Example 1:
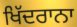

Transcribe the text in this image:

ਖਿੱਦਰਾਨਾ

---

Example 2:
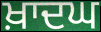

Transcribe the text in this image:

ਖ਼ਾਦਘ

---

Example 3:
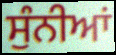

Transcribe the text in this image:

ਸੁੰਨੀਆਂ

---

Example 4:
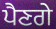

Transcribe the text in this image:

ਪੈਣਗੇ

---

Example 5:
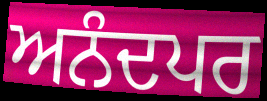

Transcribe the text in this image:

ਅਨੰਦਪਰ